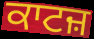
ਕਾਟਜ਼